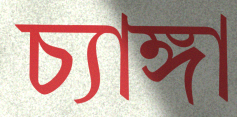
চ্যাঙ্গা